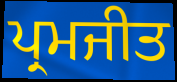
ਪ੍ਰਮਜੀਤ